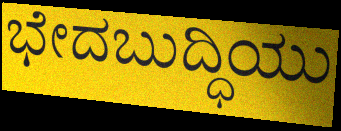
ಭೇದಬುದ್ಧಿಯು